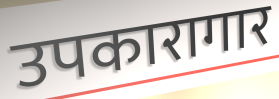
उपकारागार